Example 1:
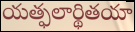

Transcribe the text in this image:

యత్ఫలార్థితయా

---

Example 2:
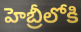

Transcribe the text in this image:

హెబ్రీలోకి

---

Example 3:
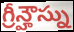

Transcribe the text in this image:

గ్రీన్హౌస్ను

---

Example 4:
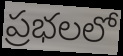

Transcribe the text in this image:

ప్రభలలో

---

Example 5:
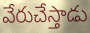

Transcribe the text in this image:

వేరుచేస్తాడు